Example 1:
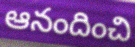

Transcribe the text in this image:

ఆనందించి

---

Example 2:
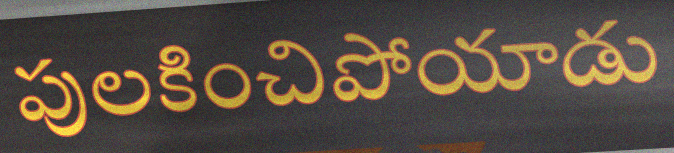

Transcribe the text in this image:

పులకించిపోయాడు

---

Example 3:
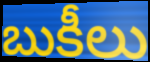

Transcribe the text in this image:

బుకీలు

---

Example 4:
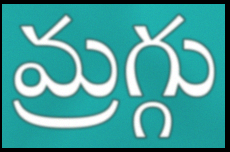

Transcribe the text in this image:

మ్రగ్గు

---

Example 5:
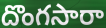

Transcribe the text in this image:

దొంగసారా